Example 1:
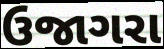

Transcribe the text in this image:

ઉજાગરા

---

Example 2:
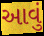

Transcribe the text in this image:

આવું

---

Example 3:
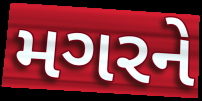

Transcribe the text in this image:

મગરને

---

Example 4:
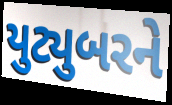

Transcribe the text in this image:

યુટ્યુબરને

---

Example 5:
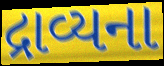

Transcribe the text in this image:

દ્રાવ્યના